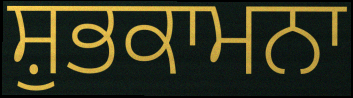
ਸ਼ੁਭਕਾਮਨਾ